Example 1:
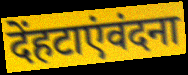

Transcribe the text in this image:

देंहटाएंवंदना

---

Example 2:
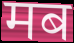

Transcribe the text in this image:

मब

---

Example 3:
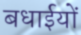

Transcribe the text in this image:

बधाईयों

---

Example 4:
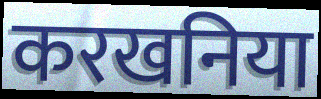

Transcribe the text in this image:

करखनिया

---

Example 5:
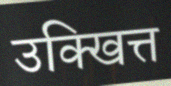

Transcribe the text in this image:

उक्खित्त